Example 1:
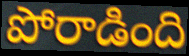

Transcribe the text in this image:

పోరాడింది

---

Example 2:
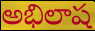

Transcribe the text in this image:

అభిలాష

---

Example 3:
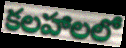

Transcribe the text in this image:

కలహాలలో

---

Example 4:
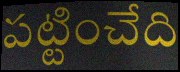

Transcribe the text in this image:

పట్టించేది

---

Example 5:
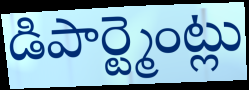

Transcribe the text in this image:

డిపార్ట్మెంట్లు